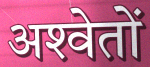
अश्‍वेतों